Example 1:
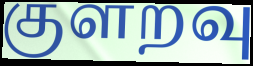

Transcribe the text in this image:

குளறவு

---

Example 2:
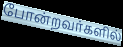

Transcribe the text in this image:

போன்றவர்களில்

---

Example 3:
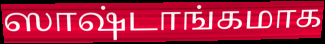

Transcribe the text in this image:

ஸாஷ்டாங்கமாக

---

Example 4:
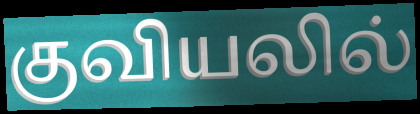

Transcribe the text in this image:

குவியலில்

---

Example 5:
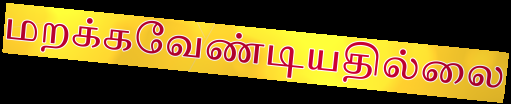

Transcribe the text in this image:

மறக்கவேண்டியதில்லை